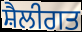
ਸ਼ੈਲੀਗਤ